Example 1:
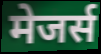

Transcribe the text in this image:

मेजर्स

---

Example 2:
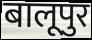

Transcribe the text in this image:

बालूपुर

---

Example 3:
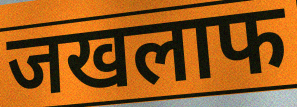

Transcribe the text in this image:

जखलाफ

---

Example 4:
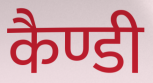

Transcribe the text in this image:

कैण्डी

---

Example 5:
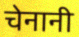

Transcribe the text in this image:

चेनानी